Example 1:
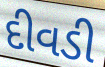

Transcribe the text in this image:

દીવડી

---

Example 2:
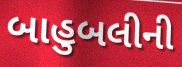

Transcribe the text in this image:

બાહુબલીની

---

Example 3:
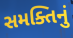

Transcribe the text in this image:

સમક્તિનું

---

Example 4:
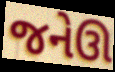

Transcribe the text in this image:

જનેઊ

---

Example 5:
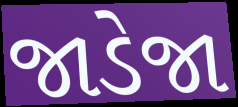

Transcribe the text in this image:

જાડેજા